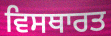
ਵਿਸਥਾਰਤ